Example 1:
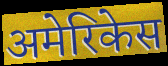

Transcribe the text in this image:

अमेरिकेस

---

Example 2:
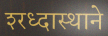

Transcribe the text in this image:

श्रध्दास्थाने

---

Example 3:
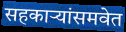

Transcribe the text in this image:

सहकाऱ्यांसमवेत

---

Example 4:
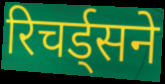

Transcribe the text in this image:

रिचर्ड्सने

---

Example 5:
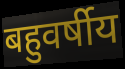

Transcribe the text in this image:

बहुवर्षीय